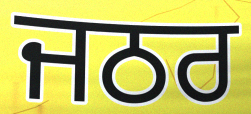
ਜਠਰ